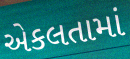
એકલતામાં